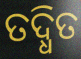
ତଦ୍ଧିତ